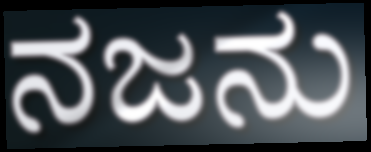
ನಜನು